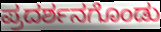
ಪ್ರದರ್ಶನಗೊಂಡು